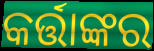
କର୍ତ୍ତାଙ୍କର